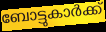
ബോട്ടുകാർക്ക്